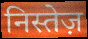
निस्तेज़